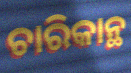
ଚାରିକାନ୍ଥ